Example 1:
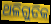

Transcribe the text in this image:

ଥଳିଗୁଡିକ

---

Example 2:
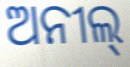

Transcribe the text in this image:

ଅନୀଲ୍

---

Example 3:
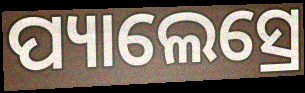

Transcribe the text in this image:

ପ୍ୟାଲେସ୍ରେ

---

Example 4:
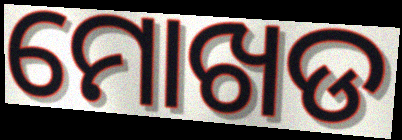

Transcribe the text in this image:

ମୋଖଡ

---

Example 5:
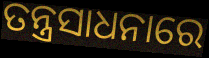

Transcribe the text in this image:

ତନ୍ତ୍ରସାଧନାରେ